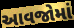
આવજોમાં